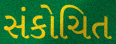
સંકોચિત